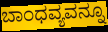
ಬಾಂಧವ್ಯವನ್ನೂ